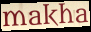
makha